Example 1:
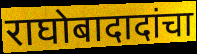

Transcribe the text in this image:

राघोबादादांचा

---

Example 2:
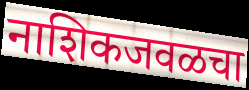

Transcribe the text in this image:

नाशिकजवळचा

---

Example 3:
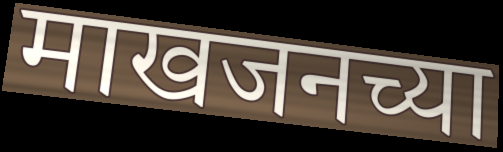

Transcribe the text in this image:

माखजनच्या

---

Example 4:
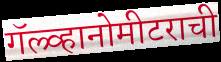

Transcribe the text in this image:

गॅल्व्हानोमीटराची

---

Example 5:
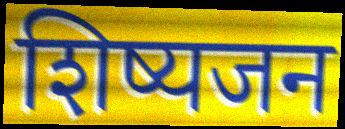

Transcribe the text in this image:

शिष्यजन